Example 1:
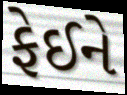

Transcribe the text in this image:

ફેઈને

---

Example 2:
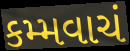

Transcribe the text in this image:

કમ્મવાચં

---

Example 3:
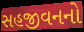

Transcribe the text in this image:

સહજીવનનો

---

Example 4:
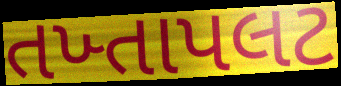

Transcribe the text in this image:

તખ્તાપલટ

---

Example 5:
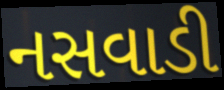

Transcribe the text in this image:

નસવાડી